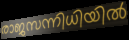
രാജസന്നിധിയിൽ